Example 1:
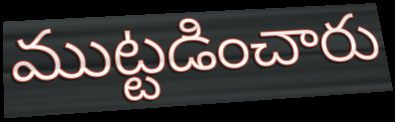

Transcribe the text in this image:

ముట్టడించారు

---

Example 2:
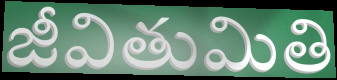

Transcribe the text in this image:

జీవితుమితి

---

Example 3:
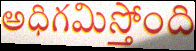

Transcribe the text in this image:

అధిగమిస్తోంది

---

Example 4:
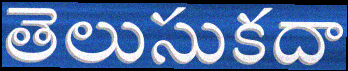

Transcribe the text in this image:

తెలుసుకదా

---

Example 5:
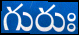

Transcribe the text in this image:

గురుః